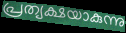
പ്രത്യക്ഷയാകുന്നു